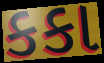
કકા